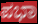
ಪಭಾ